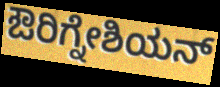
ಔರಿಗ್ನೇಶಿಯನ್